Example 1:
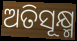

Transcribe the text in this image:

ଅତିସୂକ୍ଷ୍ମ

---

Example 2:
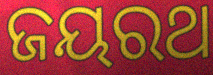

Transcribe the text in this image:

ଜୟରଥ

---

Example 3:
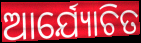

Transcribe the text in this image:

ଆର୍ଯ୍ୟୋଚିତ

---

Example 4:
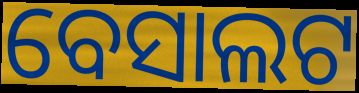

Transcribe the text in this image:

ବେସାଲଟ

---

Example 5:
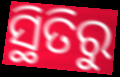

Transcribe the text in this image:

ସ୍ଥିତିରୁ